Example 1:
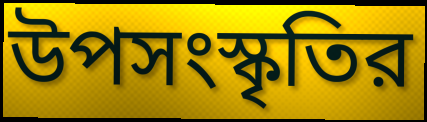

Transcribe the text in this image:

উপসংস্কৃতির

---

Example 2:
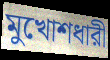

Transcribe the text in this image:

মুখোশধারী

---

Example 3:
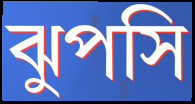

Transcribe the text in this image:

ঝুপসি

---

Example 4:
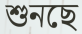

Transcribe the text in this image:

শুনছে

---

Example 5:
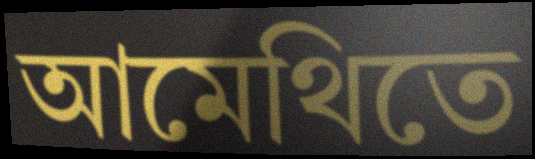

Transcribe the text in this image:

আমেথিতে